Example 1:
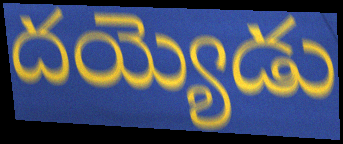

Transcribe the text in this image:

దయ్యెడు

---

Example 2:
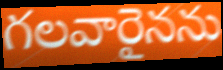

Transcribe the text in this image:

గలవారైనను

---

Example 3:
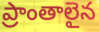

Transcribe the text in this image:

ప్రాంతాలైన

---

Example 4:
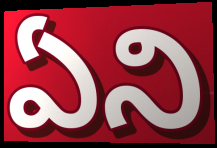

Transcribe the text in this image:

ఏని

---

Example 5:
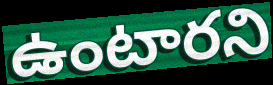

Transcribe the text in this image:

ఉంటారని